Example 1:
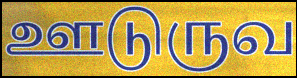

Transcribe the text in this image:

ஊடுருவ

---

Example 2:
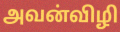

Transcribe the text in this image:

அவன்விழி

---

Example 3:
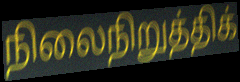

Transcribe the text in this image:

நிலைநிறுத்திக்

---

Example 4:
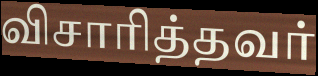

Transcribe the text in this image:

விசாரித்தவர்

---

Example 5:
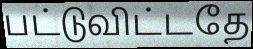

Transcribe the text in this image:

பட்டுவிட்டதே